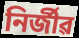
নিৰ্জীৱ